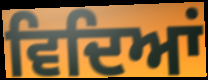
ਵਿਦਿਆਂ